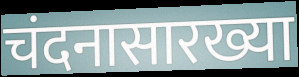
चंदनासारख्या